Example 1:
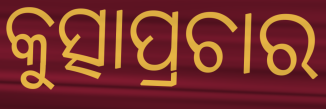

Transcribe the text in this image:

କୁତ୍ସାପ୍ରଚାର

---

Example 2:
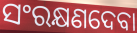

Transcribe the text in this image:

ସଂରକ୍ଷଣଦେବା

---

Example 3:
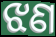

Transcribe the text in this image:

ଝଣ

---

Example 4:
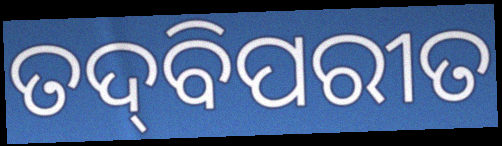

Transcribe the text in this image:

ତଦ୍‍ବିପରୀତ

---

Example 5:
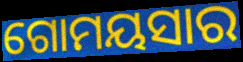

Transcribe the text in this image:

ଗୋମୟସାର